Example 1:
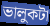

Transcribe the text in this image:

ভালুকটা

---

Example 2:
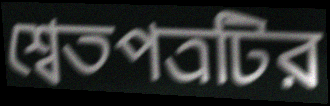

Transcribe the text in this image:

শ্বেতপত্রটির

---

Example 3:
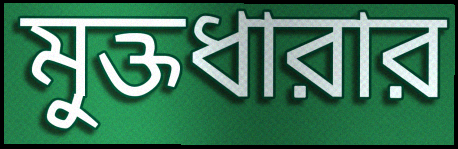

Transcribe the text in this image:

মুক্তধারার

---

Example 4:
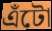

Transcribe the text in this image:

এঁটো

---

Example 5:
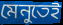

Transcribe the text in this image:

মেনুতেই